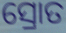
ସ୍ରୋତ